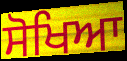
ਸੋਖਿਆ